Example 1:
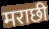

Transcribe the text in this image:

मराछी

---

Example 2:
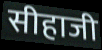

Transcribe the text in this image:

सीहाजी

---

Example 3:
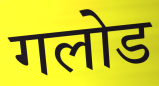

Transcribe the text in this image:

गलोड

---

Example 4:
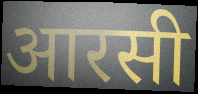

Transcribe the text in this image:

आरसी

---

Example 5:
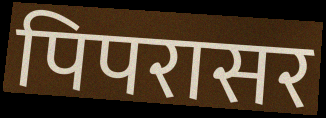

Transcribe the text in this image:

पिपरासर